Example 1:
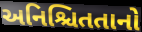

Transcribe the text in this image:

અનિશ્ચિતતાનો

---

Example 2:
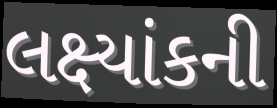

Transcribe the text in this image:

લક્ષ્યાંકની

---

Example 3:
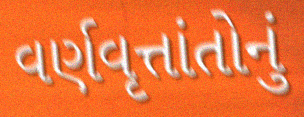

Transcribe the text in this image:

વર્ણવૃત્તાંતોનું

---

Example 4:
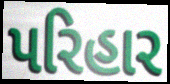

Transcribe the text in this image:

પરિહાર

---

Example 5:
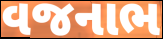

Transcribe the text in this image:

વજનાભ